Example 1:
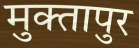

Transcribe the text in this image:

मुक्तापुर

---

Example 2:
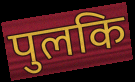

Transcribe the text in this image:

पुलकि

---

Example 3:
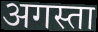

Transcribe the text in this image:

अगस्ता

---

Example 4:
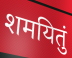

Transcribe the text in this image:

शमयितुं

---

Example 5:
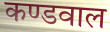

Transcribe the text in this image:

कण्डवाल